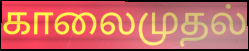
காலைமுதல்